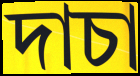
দাচা